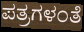
ಪತ್ರಗಳಂತೆ